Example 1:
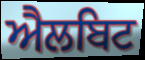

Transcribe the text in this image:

ਐਲਬਿਟ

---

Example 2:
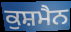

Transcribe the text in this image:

ਕੁਸ਼ਮੈਨ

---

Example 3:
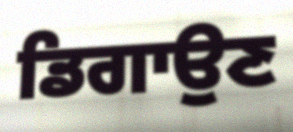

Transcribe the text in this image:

ਡਿਗਾਉਣ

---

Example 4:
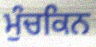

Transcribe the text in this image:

ਮੁੰਚਕਿਨ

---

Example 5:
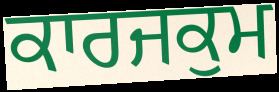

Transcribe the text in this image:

ਕਾਰਜਕੁਮ